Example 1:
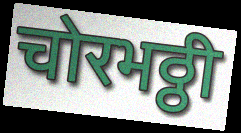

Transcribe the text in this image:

चोरभठ्ठी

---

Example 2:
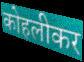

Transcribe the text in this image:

कोहलीकर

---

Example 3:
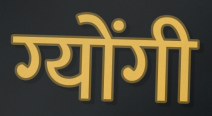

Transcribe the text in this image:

ग्योंगी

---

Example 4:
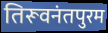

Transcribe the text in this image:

तिरूवनंतपुरम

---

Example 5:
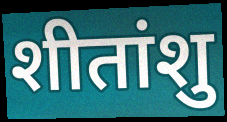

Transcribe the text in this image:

शीतांशु